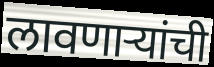
लावणाऱ्यांची